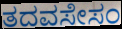
ತದವಸೇಸಂ